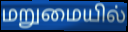
மறுமையில்